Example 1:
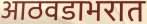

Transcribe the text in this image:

आठवडाभरात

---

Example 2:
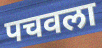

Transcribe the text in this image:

पचवला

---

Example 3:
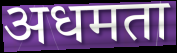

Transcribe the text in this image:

अधमता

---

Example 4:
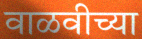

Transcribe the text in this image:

वाळवीच्या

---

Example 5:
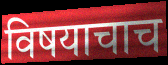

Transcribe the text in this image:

विषयाचाच